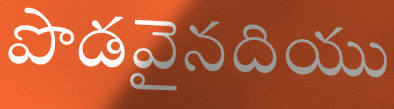
పొడవైనదియు